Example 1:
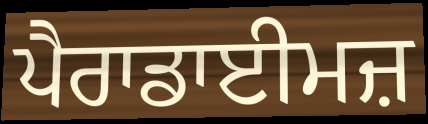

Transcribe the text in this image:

ਪੈਰਾਡਾਈਮਜ਼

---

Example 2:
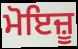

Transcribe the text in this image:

ਮੋਇਜ਼ੂ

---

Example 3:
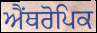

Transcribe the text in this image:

ਐਂਥਰੋਪਿਕ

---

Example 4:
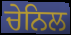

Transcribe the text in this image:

ਚੇਨਿਲ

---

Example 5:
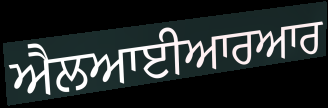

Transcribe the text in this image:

ਐਲਆਈਆਰਆਰ